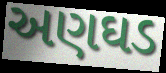
અણઘડ